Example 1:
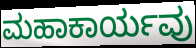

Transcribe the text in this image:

ಮಹಾಕಾರ್ಯವು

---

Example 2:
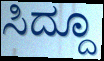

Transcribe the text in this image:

ಸಿದ್ದೂ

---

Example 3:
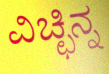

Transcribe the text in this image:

ವಿಚ್ಛಿನ್ನ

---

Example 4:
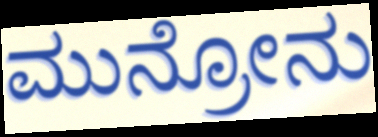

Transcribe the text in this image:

ಮುನ್ರೋನು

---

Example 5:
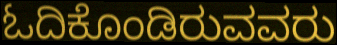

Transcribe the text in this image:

ಓದಿಕೊಂಡಿರುವವರು